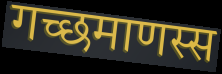
गच्छमाणस्स